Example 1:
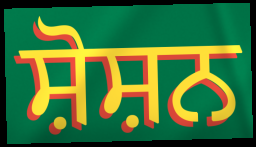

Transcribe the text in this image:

ਸ਼ੋਸ਼ਨ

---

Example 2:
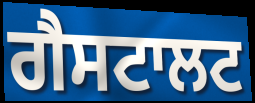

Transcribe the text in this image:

ਗੈਸਟਾਲਟ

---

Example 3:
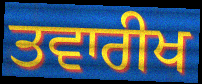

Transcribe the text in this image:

ਤਵਾਰੀਖ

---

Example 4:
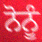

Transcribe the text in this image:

ਨੋਨੂੰ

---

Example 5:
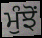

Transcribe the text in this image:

ਮੁੰਝੋਂ